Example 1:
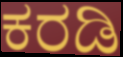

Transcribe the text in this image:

ಕರಡಿ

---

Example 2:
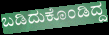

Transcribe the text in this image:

ಬಡಿದುಕೊಂಡಿದ್ದ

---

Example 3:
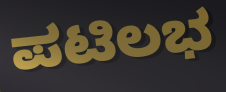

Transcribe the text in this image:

ಪಟಿಲಭ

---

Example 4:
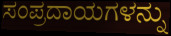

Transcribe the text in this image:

ಸಂಪ್ರದಾಯಗಳನ್ನು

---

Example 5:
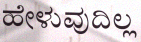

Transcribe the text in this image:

ಹೇಳುವುದಿಲ್ಲ